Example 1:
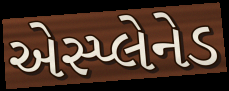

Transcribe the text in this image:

એસ્પ્લેનેડ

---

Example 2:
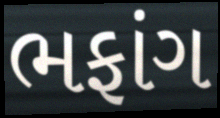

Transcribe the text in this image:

ભફાંગ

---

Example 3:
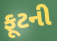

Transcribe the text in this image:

ફૂટની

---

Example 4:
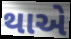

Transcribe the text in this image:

થાએ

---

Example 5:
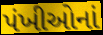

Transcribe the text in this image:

પંખીઓનાં